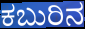
ಕಬುರಿನ